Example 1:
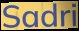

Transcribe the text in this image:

Sadri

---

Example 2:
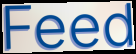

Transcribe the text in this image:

Feed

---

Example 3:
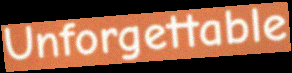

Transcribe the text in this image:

Unforgettable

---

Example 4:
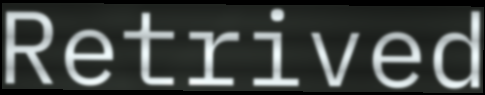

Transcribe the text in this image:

Retrived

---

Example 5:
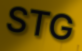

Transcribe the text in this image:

STG